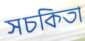
সচকিতা